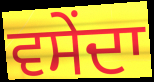
ਵਸੇਂਦਾ